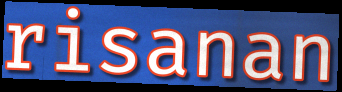
risanan